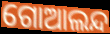
ଗୋଆଲନ୍ଦ